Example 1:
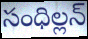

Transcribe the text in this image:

సంధిల్లన్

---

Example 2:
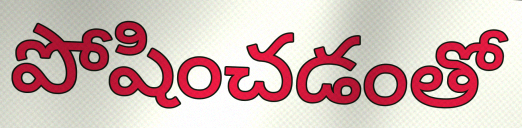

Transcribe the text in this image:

పోషించడంతో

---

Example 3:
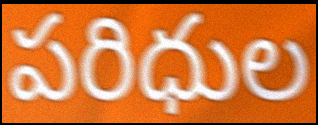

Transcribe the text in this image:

పరిధుల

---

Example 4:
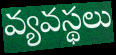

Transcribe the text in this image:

వ్యవస్థలు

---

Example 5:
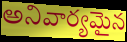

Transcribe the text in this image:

అనివార్యమైన